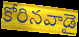
కోరినవాడై